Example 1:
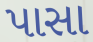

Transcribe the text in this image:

પાસા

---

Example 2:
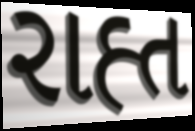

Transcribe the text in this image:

રાહ્ત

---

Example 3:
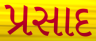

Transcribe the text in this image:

પ્રસાદ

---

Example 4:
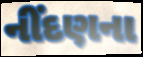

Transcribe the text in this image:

નીંદણના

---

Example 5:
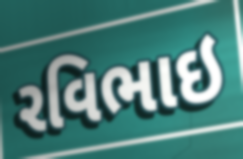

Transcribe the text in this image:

રવિભાઇ